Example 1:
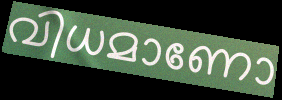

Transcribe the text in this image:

വിധമാണോ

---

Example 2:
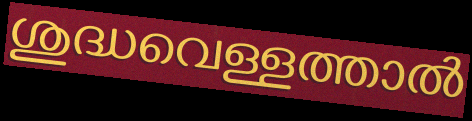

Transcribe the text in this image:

ശുദ്ധവെള്ളത്താൽ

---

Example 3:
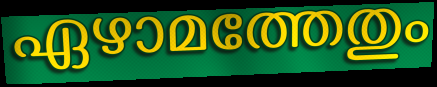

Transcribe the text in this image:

ഏഴാമത്തേതും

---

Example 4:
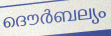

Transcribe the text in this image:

ദൌർബല്യം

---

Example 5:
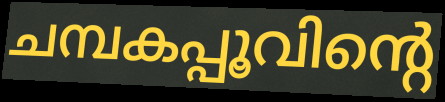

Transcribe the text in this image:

ചമ്പകപ്പൂവിന്റെ